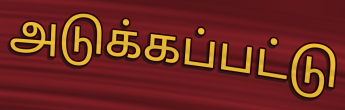
அடுக்கப்பட்டு